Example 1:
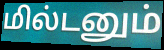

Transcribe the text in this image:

மில்டனும்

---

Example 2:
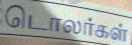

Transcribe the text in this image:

டொலர்கள்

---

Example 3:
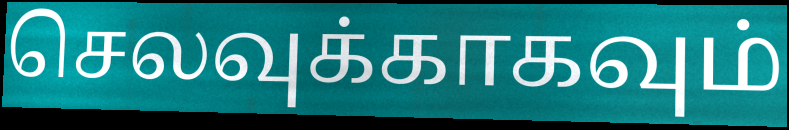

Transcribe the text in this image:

செலவுக்காகவும்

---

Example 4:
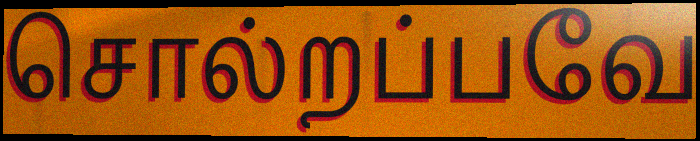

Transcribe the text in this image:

சொல்றப்பவே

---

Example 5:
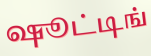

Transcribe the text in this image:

ஷூட்டிங்